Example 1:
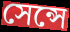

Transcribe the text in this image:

সেন্সে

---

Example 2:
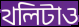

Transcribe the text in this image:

থলিটাও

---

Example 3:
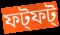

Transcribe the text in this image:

ফট্ফট্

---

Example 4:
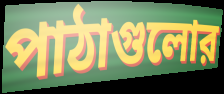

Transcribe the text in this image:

পাঠাগুলোর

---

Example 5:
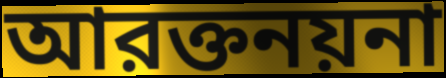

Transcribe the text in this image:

আরক্তনয়না